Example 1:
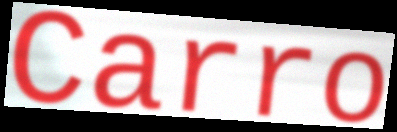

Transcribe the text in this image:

Carro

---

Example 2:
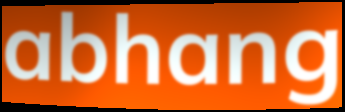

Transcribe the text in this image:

abhang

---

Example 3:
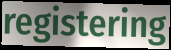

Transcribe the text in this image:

registering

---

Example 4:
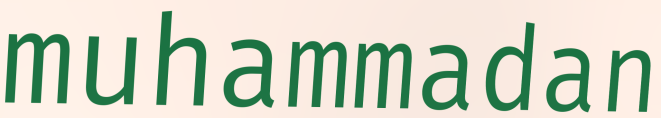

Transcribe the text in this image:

muhammadan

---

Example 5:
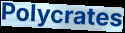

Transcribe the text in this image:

Polycrates